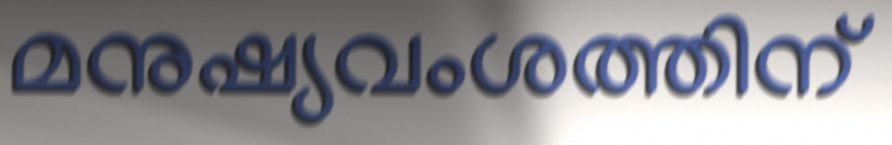
മനുഷ്യവംശത്തിന്